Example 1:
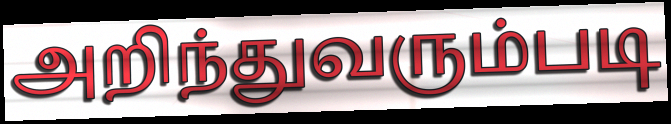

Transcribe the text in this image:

அறிந்துவரும்படி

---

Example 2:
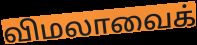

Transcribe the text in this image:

விமலாவைக்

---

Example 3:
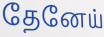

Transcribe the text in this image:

தேனேய்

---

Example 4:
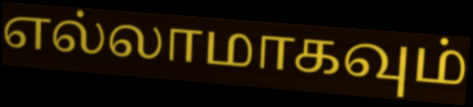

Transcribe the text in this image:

எல்லாமாகவும்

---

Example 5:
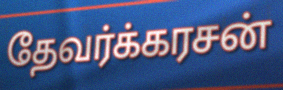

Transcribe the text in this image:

தேவர்க்கரசன்